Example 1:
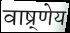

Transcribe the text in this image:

वाष्र्णेय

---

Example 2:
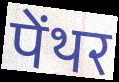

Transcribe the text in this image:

पेंथर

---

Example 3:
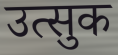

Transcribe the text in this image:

उत्सुक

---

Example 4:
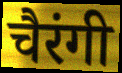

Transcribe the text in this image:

चैरंगी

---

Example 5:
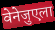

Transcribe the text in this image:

वेनेजुएला